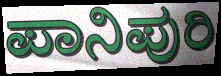
ಪಾನಿಪುರಿ